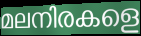
മലനിരകളെ